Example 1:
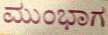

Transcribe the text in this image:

ಮುಂಭಾಗ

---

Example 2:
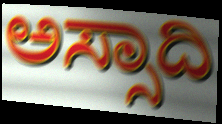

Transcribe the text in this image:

ಅಸ್ಸಾದಿ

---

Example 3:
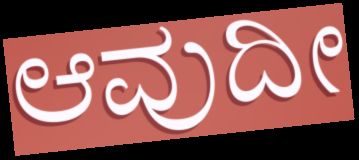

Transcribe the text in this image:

ಆವುದೀ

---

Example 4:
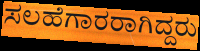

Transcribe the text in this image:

ಸಲಹೆಗಾರರಾಗಿದ್ದರು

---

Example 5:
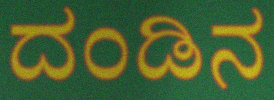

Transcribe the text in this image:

ದಂಡಿನ